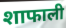
शाफाली